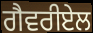
ਗੈਵਰੀਏਲ